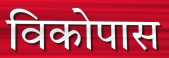
विकोपास